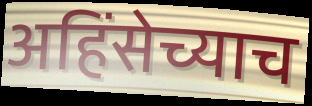
अहिंसेच्याच